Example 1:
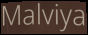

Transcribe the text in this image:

Malviya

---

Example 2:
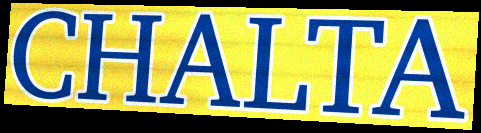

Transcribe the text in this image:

CHALTA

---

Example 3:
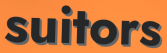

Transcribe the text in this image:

suitors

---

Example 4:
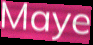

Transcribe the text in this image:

Maye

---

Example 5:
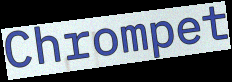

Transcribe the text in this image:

Chrompet